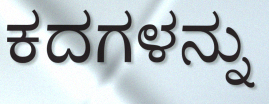
ಕದಗಳನ್ನು